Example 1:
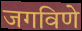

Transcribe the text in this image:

जगविणे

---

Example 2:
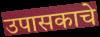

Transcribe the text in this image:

उपासकाचे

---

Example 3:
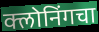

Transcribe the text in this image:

क्लोनिंगचा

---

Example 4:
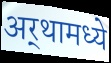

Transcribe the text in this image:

अर्थामध्ये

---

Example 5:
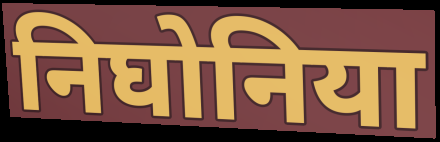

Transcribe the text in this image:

निघोनिया